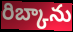
రిబ్కాను